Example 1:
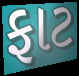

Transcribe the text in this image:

ફાટ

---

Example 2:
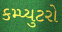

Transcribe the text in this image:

કમ્પ્યુટરો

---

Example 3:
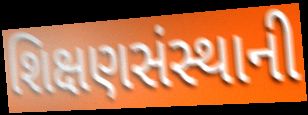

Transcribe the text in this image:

શિક્ષણસંસ્થાની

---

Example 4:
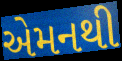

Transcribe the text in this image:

એમનથી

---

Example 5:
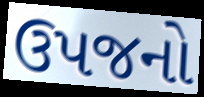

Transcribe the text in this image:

ઉપજનો